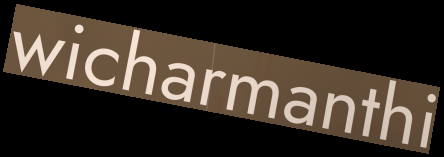
wicharmanthi